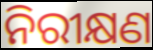
ନିରୀକ୍ଷଣ